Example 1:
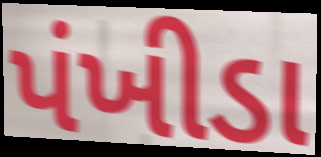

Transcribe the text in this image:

પંખીડા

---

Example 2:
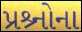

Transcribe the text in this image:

પ્રશ્ર્નોના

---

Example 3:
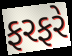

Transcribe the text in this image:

ફરફરે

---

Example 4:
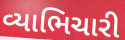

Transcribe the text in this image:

વ્યાભિચારી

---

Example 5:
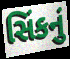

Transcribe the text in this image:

સિંકનું